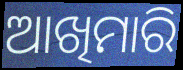
ଆଖିମାରି